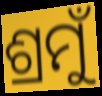
ଶ୍ରମୁଁ